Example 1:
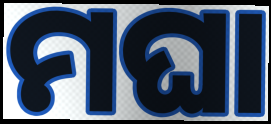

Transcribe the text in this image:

ମଘା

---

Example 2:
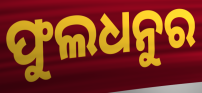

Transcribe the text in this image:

ଫୁଲଧନୁର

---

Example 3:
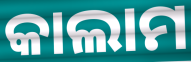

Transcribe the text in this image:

କାଲାମ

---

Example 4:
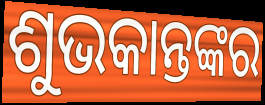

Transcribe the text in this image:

ଶୁଭକାନ୍ତଙ୍କର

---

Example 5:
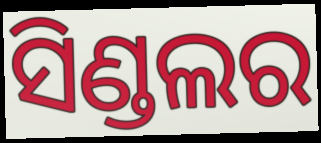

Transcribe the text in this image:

ସିଣ୍ଡଲର